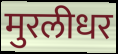
मुरलीधर